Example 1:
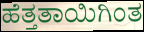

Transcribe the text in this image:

ಹೆತ್ತತಾಯಿಗಿಂತ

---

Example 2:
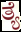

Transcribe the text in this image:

ತ್ಯೆ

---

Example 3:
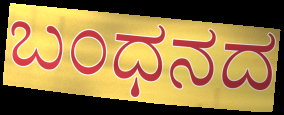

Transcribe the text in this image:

ಬಂಧನದ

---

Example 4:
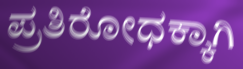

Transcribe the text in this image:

ಪ್ರತಿರೋಧಕ್ಕಾಗಿ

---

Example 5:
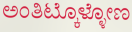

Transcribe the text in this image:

ಅಂತಿಟ್ಕೊಳ್ಳೋಣ